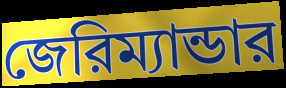
জেরিম্যান্ডার